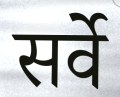
सर्वे